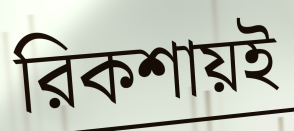
রিকশায়ই